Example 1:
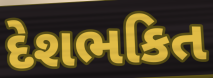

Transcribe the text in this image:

દેશભકિત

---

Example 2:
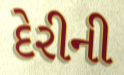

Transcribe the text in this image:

દેરીની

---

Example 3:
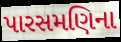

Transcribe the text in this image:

પારસમણિના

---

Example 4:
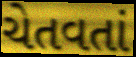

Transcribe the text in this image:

ચેતવતાં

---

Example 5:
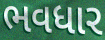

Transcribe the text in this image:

ભવધાર